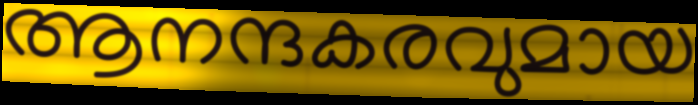
ആനന്ദകരവുമായ